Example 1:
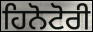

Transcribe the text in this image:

ਹਿਨੋਟੋਰੀ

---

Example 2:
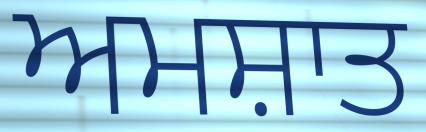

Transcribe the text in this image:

ਅਮਸ਼ਾਤ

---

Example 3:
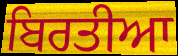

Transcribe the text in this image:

ਬਿਰਤੀਆ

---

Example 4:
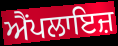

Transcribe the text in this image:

ਐਂਪਲਾਇਜ਼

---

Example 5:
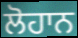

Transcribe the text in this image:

ਲੋਹਾਨ